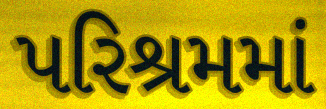
પરિશ્રમમાં